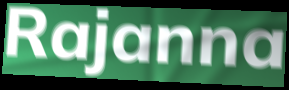
Rajanna